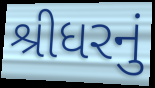
શ્રીધરનું